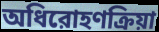
অধিরোহণক্রিয়া